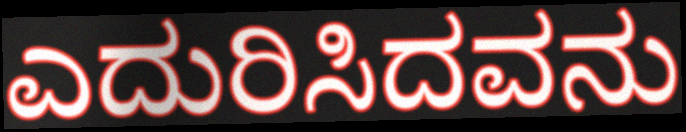
ಎದುರಿಸಿದವನು